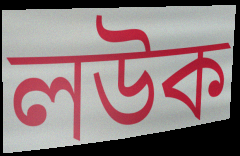
লউক